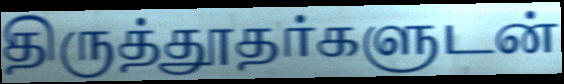
திருத்தூதர்களுடன்